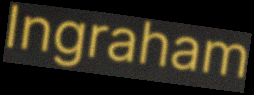
Ingraham